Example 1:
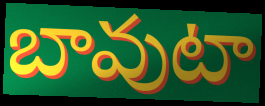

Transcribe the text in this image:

బావుటా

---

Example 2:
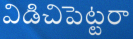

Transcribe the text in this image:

విడిచిపెట్టరా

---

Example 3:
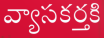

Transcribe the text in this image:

వ్యాసకర్తకి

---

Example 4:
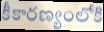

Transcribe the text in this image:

కీకారణ్యంలోకి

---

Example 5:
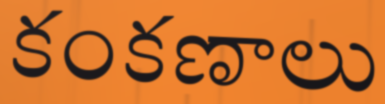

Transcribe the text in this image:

కంకణాలు